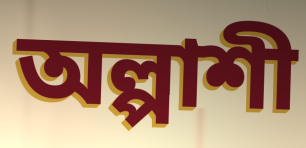
অল্পাশী